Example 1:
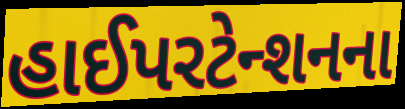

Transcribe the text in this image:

હાઈપરટેન્શનના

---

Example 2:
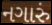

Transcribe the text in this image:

નગારું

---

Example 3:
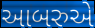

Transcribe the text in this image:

આબરુએ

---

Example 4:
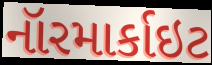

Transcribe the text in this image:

નૉરમાર્કાઇટ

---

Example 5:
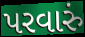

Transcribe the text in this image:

પરવારું